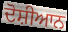
ਦੋਸ਼ੀਆਨ